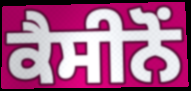
ਕੈਸੀਨੋਂ